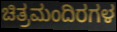
ಚಿತ್ರಮಂದಿರಗಳ